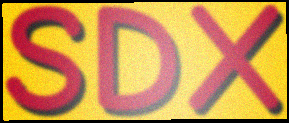
SDX